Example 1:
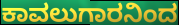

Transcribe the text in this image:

ಕಾವಲುಗಾರನಿಂದ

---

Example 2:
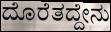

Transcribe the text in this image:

ದೊರೆತದ್ದೇನು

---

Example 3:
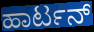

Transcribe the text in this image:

ಹಾರ್ಟನ್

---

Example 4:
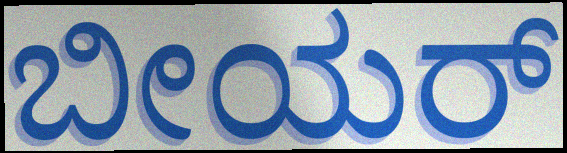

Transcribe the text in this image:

ಬೀಯರ್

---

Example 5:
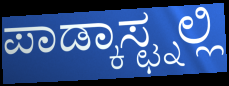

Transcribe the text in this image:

ಪಾಡ್ಕಾಸ್ಟ್ನಲ್ಲಿ